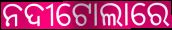
ନଦୀଟୋଲାରେ